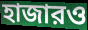
হাজারও